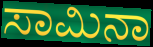
ಸಾಮಿನಾ